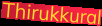
Thirukkural